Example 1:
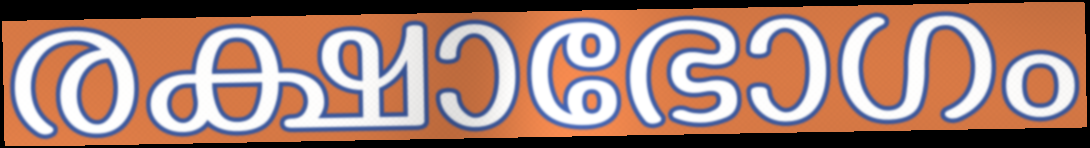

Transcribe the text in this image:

രക്ഷാഭോഗം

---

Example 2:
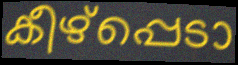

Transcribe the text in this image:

കീഴ്പ്പെടാ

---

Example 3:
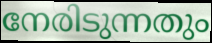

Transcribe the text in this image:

നേരിടുന്നതും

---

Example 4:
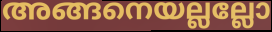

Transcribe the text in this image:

അങ്ങനെയല്ലല്ലോ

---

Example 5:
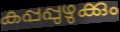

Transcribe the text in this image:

കപ്പപ്പുഴുക്കും